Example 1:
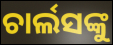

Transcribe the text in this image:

ଚାର୍ଲସଙ୍କୁ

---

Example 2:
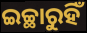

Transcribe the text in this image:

ଇଚ୍ଛାରୁହିଁ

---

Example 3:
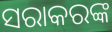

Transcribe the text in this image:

ସରାକରଙ୍କ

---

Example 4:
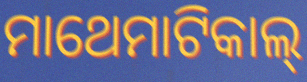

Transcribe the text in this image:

ମାଥେମାଟିକାଲ୍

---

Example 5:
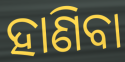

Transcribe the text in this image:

ହାଣିବା